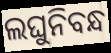
ଲଘୁନିବନ୍ଧ